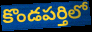
కొండపర్తిలో